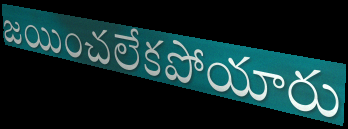
జయించలేకపోయారు